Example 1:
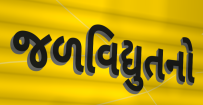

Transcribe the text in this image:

જળવિદ્યુતનો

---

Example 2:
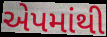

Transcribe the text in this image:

એપમાંથી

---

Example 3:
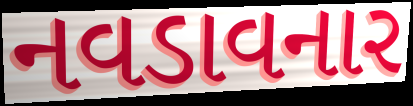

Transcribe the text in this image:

નવડાવનાર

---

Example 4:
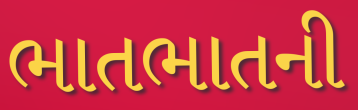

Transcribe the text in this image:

ભાતભાતની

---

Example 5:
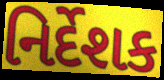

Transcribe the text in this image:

નિર્દેશક